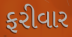
ફરીવાર